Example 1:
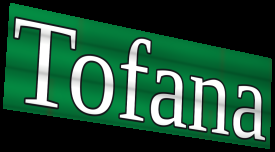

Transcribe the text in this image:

Tofana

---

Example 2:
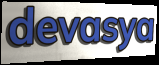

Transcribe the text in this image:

devasya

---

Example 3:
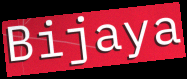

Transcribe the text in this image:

Bijaya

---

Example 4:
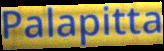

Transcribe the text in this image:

Palapitta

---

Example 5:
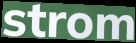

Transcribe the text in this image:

strom